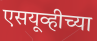
एसयूव्हीच्या